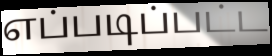
எப்படிப்பட்ட